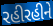
રહીરહીને